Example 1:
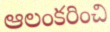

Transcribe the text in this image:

ఆలంకరించి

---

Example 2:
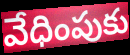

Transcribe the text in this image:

వేధింపుకు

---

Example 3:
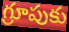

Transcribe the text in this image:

గ్రూపుకు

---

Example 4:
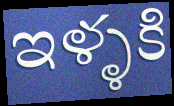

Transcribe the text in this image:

ఇళ్ళకి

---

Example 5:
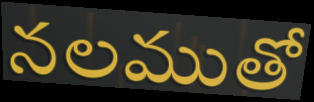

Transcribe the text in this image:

నలముతో